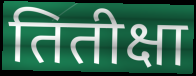
तितीक्षा